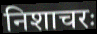
निशाचरः